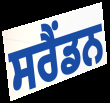
ਸਰੈਂਡਨ